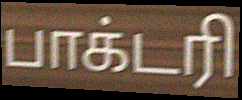
பாக்டரி